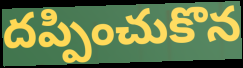
దప్పించుకొన